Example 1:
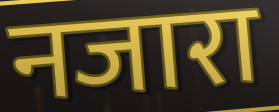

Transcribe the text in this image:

नजारा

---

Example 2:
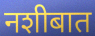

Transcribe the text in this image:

नशीबात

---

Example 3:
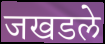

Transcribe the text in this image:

जखडले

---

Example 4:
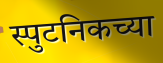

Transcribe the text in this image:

स्पुटनिकच्या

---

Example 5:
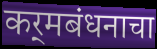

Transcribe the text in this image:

कर्मबंधनाचा